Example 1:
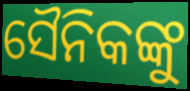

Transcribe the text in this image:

ସୈନିକଙ୍କୁ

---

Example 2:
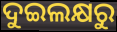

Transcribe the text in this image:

ଦୁଇଲକ୍ଷରୁ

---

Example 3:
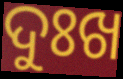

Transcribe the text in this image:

ଦୁଃଖ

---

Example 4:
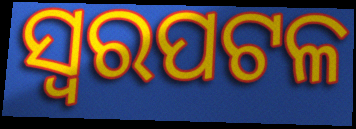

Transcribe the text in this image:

ସ୍ୱରପଟଳ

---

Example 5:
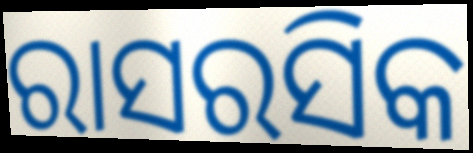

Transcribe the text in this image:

ରାସରସିକ